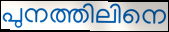
പുനത്തിലിനെ